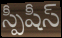
స్పీషీస్